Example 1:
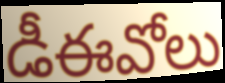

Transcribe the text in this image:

డీఈవోలు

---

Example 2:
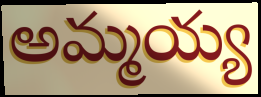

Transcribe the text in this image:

అమ్మయ్య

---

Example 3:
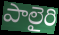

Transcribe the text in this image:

పాలైరి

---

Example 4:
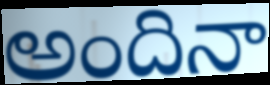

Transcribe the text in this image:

అందినా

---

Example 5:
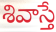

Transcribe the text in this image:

శివాస్తే